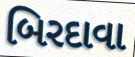
બિરદાવા